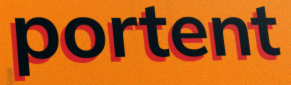
portent